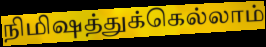
நிமிஷத்துக்கெல்லாம்